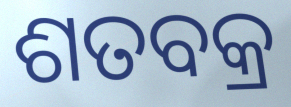
ଶତବକ୍ର